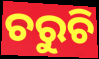
ଚରୁଚି